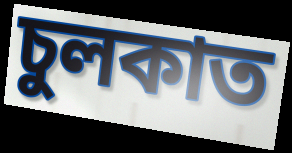
চুলকাত